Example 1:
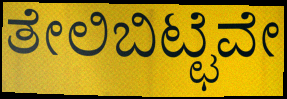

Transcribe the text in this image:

ತೇಲಿಬಿಟ್ಟೆವೇ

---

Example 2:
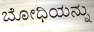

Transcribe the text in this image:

ಬೋಧಿಯನ್ನು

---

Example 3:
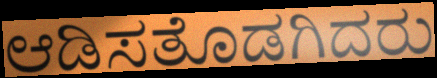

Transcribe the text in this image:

ಆಡಿಸತೊಡಗಿದರು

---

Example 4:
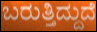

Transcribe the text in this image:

ಬರುತ್ತಿದ್ದುದೆ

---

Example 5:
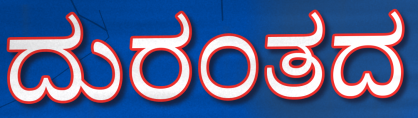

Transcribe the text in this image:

ದುರಂತದ